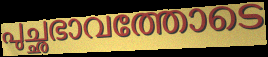
പുച്ഛഭാവത്തോടെ